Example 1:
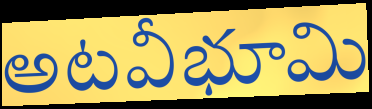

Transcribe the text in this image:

అటవీభూమి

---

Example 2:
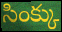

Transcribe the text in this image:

సింక్కు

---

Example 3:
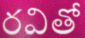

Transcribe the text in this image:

రవితో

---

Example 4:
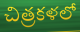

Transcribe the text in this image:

చిత్రకళలో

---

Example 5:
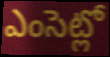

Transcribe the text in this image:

ఎంసెట్లో